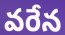
వరేన